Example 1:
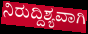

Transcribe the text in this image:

ನಿರುದ್ದಿಶ್ಯವಾಗಿ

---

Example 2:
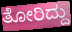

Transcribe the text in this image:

ತೋರಿದ್ದು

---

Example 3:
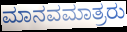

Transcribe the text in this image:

ಮಾನವಮಾತ್ರರು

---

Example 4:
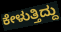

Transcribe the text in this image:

ಕೇಳುತ್ತಿದ್ದು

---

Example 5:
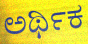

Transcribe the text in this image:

ಅರ್ಥಿಕ